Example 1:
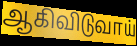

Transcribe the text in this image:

ஆகிவிடுவாய்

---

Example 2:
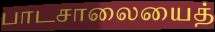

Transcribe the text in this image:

பாடசாலையைத்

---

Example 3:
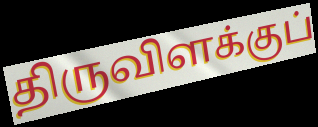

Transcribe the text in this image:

திருவிளக்குப்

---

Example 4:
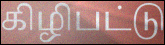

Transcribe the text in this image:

கிழிபட்டு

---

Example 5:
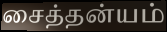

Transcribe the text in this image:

சைத்தன்யம்